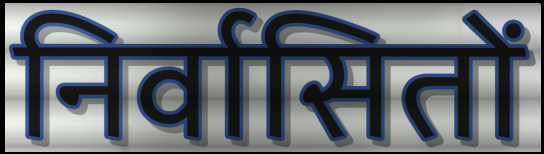
निर्वासितों